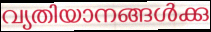
വ്യതിയാനങ്ങൾക്കു